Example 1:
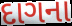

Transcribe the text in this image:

દાગના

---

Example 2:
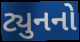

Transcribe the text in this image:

ટ્યુનનો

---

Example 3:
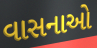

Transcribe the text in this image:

વાસનાઓ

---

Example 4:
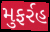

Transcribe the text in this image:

મુફર્રહ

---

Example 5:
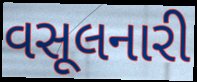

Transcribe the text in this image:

વસૂલનારી